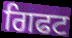
ਗਿਫਟ